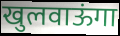
खुलवाऊंगा